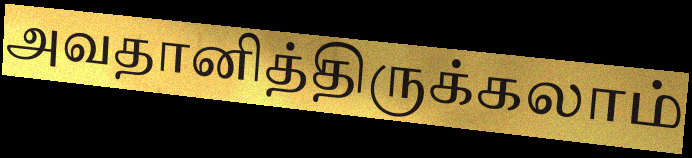
அவதானித்திருக்கலாம்